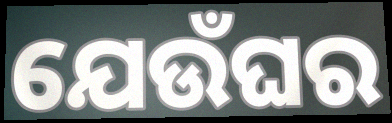
ଯେଉଁଘର